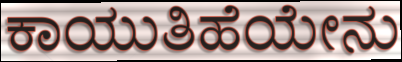
ಕಾಯುತಿಹೆಯೇನು